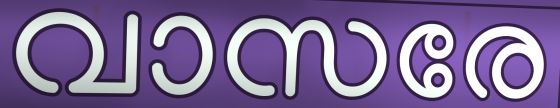
വാസരേ